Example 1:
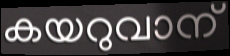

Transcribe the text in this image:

കയറുവാന്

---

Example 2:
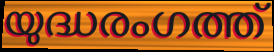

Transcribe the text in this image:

യുദ്ധരംഗത്ത്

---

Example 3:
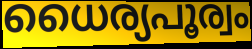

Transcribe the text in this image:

ധൈര്യപൂര്വം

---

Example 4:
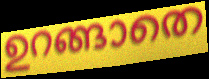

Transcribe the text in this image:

ഉറങ്ങാതെ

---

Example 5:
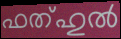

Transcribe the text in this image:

ഫത്ഹുൽ